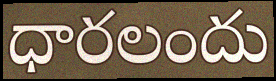
ధారలందు